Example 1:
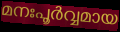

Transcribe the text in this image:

മനഃപൂർവ്വമായ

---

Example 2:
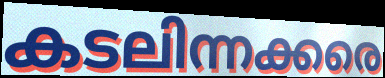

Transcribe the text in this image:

കടലിന്നക്കരെ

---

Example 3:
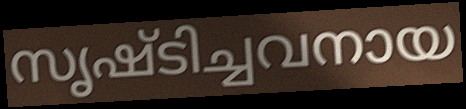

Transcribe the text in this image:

സൃഷ്ടിച്ചവനായ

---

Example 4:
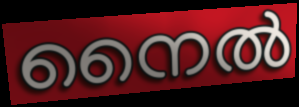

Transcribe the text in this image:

നൈൽ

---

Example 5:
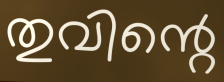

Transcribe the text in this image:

തുവിന്റെ